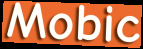
Mobic